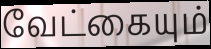
வேட்கையும்